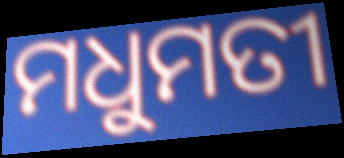
ମଧୁମତୀ